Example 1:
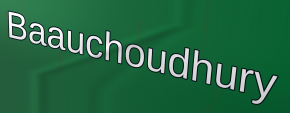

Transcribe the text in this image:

Baauchoudhury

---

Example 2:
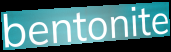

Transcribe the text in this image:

bentonite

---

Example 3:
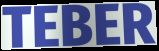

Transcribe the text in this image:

TEBER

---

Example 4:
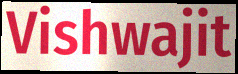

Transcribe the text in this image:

Vishwajit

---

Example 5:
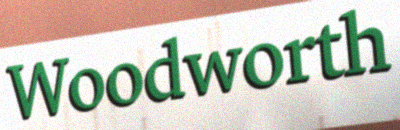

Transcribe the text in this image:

Woodworth